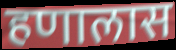
हणालास